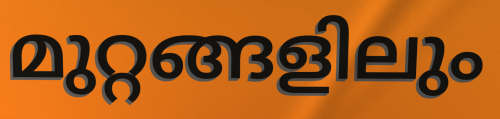
മുറ്റങ്ങളിലും